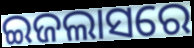
ଇଜଲାସରେ